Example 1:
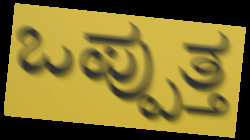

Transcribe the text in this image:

ಒಪ್ಪುತ್ತ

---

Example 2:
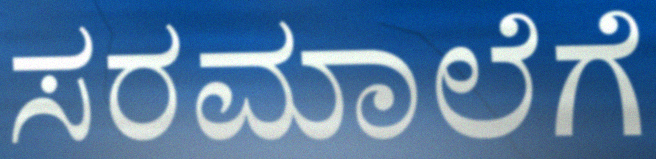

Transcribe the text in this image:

ಸರಮಾಲೆಗೆ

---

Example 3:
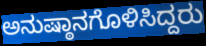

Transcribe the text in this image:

ಅನುಷ್ಠಾನಗೊಳಿಸಿದ್ದರು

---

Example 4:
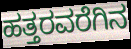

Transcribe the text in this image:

ಹತ್ತರವರೆಗಿನ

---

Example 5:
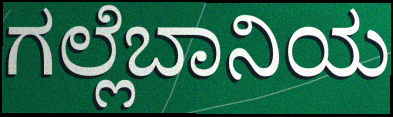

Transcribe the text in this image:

ಗಲ್ಲೆಬಾನಿಯ